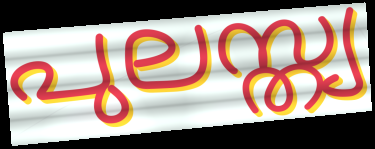
പുലസ്ത്യ